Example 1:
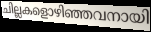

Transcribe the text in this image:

ചില്ലകളൊഴിഞ്ഞവനായി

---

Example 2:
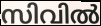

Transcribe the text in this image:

സിവിൽ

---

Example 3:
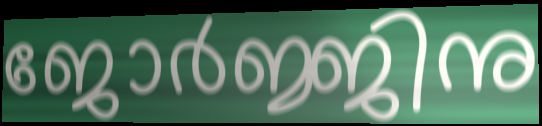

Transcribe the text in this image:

ജോർജ്ജിനു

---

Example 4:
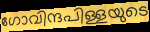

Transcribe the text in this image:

ഗോവിന്ദപിള്ളയുടെ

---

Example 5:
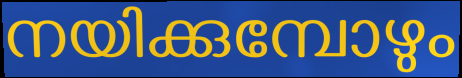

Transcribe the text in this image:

നയിക്കുമ്പോഴും